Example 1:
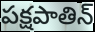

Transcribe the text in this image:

పక్షపాతిన్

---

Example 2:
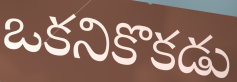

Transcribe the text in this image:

ఒకనికొకడు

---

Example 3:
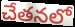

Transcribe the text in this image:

చేతనలో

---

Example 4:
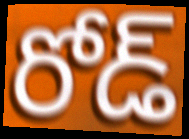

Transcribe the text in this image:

రోడ్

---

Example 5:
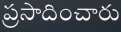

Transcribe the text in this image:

ప్రసాదించారు